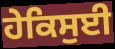
ਹੇਕਿਸੁਈ